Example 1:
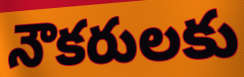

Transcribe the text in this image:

నౌకరులకు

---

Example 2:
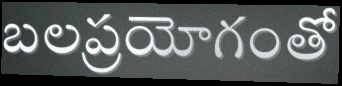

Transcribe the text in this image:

బలప్రయోగంతో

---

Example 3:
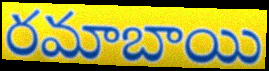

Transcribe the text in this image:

రమాబాయి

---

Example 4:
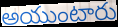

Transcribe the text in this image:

అయుంటారు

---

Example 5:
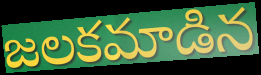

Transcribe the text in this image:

జలకమాడిన